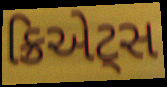
ક્રિએટ્સ